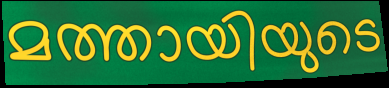
മത്തായിയുടെ